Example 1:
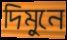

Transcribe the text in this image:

দিমুনে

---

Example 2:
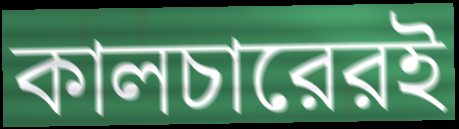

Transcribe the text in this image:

কালচারেরই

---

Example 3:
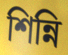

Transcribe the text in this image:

শিন্নি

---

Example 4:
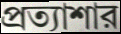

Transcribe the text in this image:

প্রত্যাশার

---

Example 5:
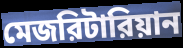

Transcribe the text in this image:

মেজরিটারিয়ান